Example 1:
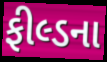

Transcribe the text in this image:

ફીલ્ડના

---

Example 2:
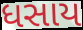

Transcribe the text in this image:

ધસાય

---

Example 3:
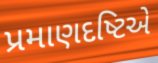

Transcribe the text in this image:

પ્રમાણદષ્ટિએ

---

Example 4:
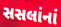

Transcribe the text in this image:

સસલાંનાં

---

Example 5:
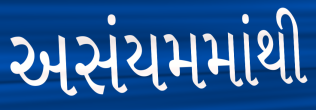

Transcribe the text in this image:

અસંયમમાંથી